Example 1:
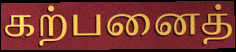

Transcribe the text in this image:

கற்பனைத்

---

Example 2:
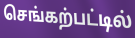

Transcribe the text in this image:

செங்கற்பட்டில்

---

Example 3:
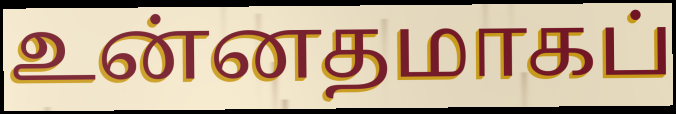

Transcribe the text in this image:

உன்னதமாகப்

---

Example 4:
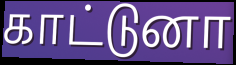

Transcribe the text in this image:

காட்டுனா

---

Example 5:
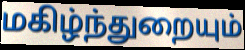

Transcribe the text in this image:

மகிழ்ந்துறையும்